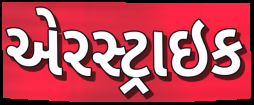
એરસ્ટ્રાઇક